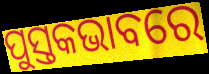
ପୁସ୍ତକଭାବରେ